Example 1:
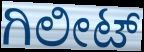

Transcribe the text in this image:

ಗಿಲೀಟ್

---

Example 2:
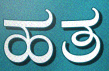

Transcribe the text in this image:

ಹತ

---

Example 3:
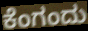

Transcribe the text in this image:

ಕೆಂಗಂದು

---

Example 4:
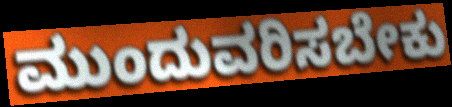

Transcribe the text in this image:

ಮುಂದುವರಿಸಬೇಕು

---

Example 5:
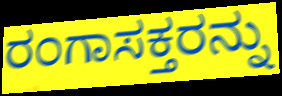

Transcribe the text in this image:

ರಂಗಾಸಕ್ತರನ್ನು